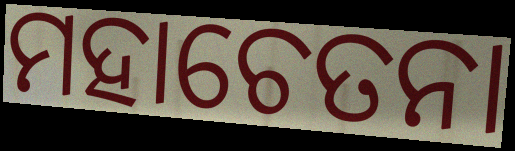
ମହାଚେତନା